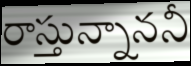
రాస్తున్నాననీ